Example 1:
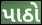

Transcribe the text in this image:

પાઠો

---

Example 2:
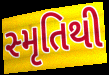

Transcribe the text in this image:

સ્મૃતિથી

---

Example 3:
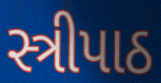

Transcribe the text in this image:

સ્ત્રીપાઠ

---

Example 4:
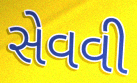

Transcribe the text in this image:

સેવવી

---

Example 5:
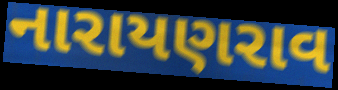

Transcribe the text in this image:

નારાયણરાવ